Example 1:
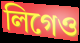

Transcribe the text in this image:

লিগেও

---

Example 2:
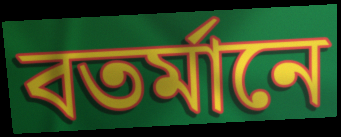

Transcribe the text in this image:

বতর্মানে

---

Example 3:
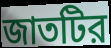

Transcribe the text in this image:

জাতটির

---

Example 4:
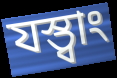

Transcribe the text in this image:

যস্ত্বাং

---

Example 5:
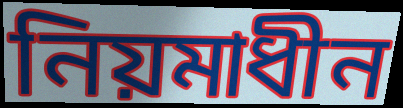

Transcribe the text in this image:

নিয়মাধীন